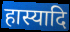
हास्यादि